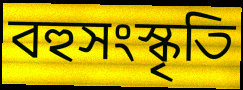
বহুসংস্কৃতি